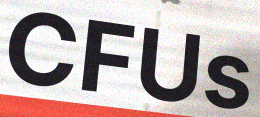
CFUs